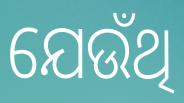
ଯେଉଁଥି